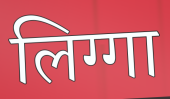
लिग्गा